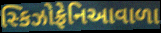
સ્કિઝોફ્રેનિઆવાળા